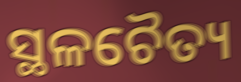
ସ୍ଥଳଚୈତ୍ୟ